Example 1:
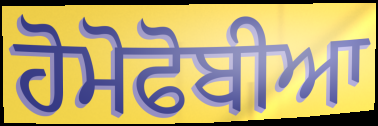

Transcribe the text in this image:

ਹੋਮੋਫੋਬੀਆ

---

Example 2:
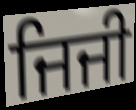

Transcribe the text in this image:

ਜਿਜੀ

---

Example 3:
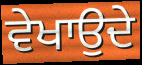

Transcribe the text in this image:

ਵੇਖਾਉਦੇ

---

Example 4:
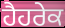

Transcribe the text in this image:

ਹੈਹਰੇਕ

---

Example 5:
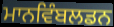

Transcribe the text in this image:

ਮਾਨਵਿੰਬਲਡਨ